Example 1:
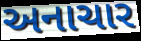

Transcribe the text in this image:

અનાચાર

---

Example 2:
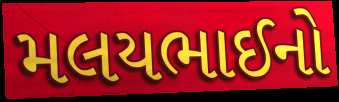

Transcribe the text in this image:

મલયભાઈનો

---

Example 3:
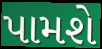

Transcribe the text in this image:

પામશે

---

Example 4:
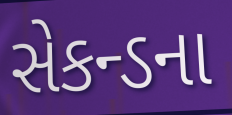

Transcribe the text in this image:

સેકન્ડના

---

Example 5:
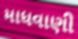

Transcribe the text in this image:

માધવાણી